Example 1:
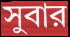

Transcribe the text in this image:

সুবার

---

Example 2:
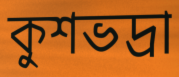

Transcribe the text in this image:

কুশভদ্রা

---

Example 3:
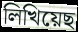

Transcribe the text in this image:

লিখিয়েছ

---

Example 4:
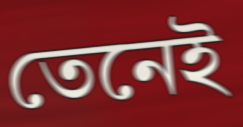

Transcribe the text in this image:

তেনেই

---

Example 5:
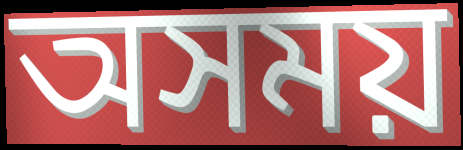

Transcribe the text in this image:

অসময়